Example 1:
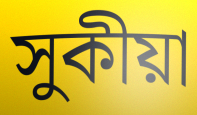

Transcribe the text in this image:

সুকীয়া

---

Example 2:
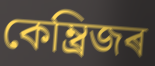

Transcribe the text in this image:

কেম্ব্ৰিজৰ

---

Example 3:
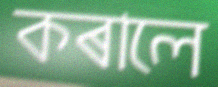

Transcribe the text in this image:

কৰালে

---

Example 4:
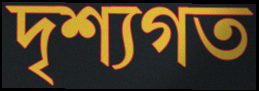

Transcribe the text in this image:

দৃশ্যগত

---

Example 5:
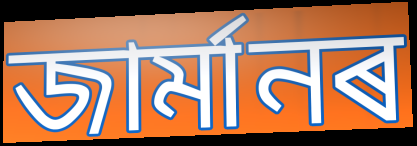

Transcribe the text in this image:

জাৰ্মানৰ